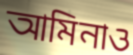
আমিনাও